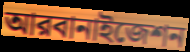
আরবানাইজেশন